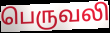
பெருவலி